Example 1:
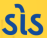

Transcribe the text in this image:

ડોડ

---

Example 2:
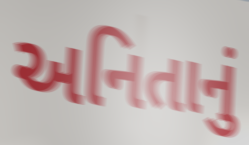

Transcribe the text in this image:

અનિતાનું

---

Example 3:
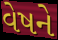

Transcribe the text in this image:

વેષને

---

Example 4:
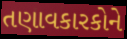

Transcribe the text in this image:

તણાવકારકોને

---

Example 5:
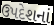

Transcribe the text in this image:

ઉપદેશનાં